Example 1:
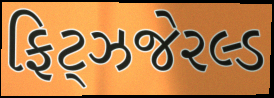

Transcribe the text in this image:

ફિટ્ઝજેરલ્ડ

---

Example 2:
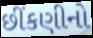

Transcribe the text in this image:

છીંકણીનો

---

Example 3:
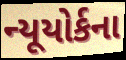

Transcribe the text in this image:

ન્યૂયોર્કના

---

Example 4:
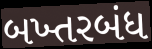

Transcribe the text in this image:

બખ્તરબંધ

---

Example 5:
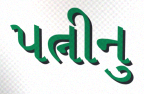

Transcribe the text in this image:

પત્નીનુ